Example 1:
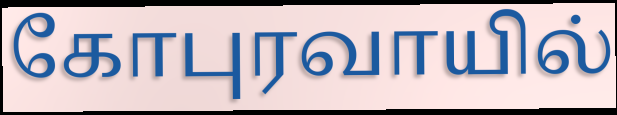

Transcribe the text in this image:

கோபுரவாயில்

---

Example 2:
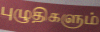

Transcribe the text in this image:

புழுதிகளும்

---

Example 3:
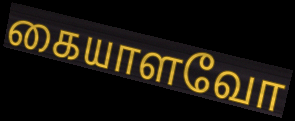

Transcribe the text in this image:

கையாளவோ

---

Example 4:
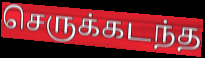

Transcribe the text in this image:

செருக்கடந்த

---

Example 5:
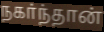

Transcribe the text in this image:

நகர்ந்தான்